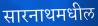
सारनाथमधील